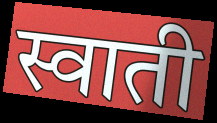
स्वाती